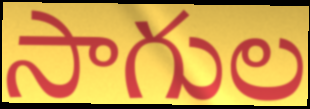
సాగుల